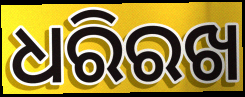
ଧରିରଖ